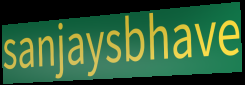
sanjaysbhave